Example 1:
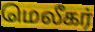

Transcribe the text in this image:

மெலீகர்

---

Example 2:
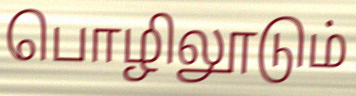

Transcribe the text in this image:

பொழிலூடும்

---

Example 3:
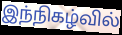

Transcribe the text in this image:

இந்நிகழ்வில்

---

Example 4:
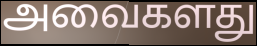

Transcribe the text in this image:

அவைகளது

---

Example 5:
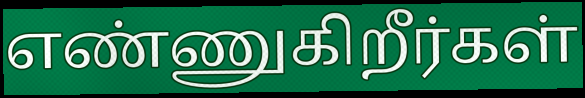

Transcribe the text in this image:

எண்ணுகிறீர்கள்